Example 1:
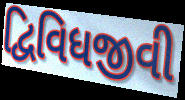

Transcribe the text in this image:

દ્વિવિધજીવી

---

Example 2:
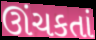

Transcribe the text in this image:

ઊંચકતાં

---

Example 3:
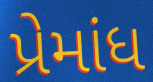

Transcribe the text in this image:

પ્રેમાંધ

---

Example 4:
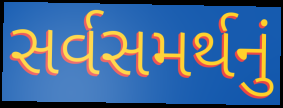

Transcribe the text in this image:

સર્વસમર્થનું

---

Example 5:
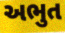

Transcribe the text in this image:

અભુત